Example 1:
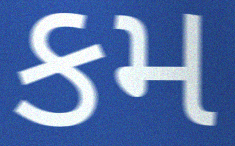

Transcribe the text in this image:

કમ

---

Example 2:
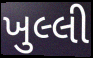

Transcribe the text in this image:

ખુલ્લી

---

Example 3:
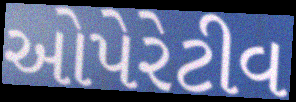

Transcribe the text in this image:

ઓપેરેટીવ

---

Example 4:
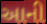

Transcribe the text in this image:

આની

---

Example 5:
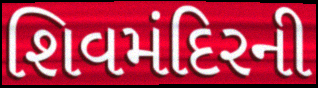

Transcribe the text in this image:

શિવમંદિરની